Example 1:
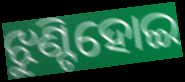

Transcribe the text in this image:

ଝୁଣ୍ଟିହୋଇ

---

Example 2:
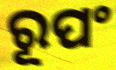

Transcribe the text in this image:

ରୂପଂ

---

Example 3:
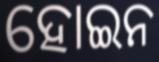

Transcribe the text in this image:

ହୋଇନ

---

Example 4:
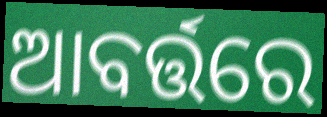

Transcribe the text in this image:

ଆବର୍ତ୍ତରେ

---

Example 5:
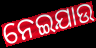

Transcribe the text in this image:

ନେଇଯାଉ